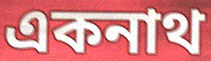
একনাথ